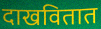
दाखवितात